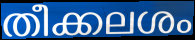
തീക്കലശം